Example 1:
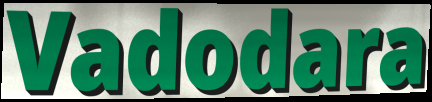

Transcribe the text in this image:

Vadodara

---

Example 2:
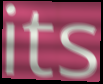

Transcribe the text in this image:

its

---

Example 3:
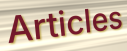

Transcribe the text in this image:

Articles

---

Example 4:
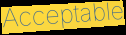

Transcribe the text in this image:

Acceptable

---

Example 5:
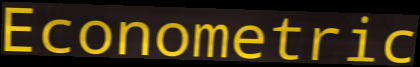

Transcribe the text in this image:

Econometric